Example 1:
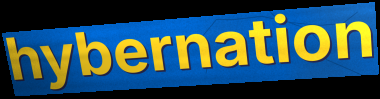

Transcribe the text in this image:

hybernation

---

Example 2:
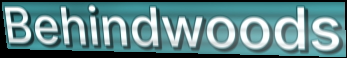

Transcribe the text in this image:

Behindwoods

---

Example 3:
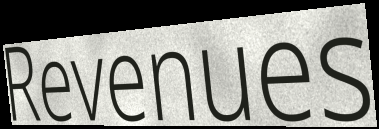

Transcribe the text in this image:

Revenues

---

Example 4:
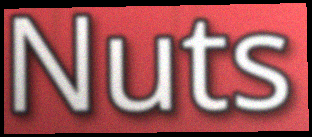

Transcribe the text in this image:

Nuts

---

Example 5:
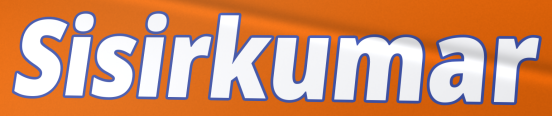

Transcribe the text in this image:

Sisirkumar